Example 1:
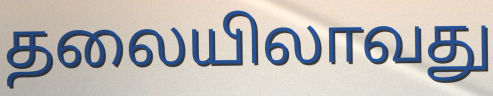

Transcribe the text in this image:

தலையிலாவது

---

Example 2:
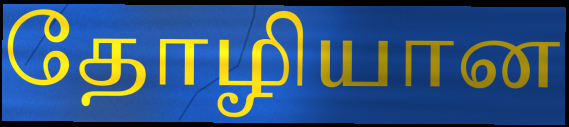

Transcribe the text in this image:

தோழியான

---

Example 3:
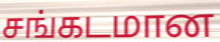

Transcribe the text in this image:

சங்கடமான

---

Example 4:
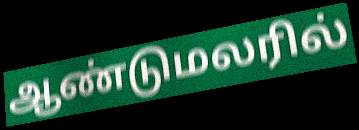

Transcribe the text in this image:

ஆண்டுமலரில்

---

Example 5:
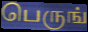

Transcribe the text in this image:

பெருங்